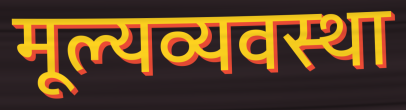
मूल्यव्यवस्था